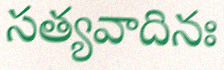
సత్యవాదినః